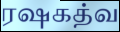
ரஷகத்வ